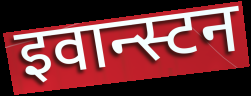
इवान्स्टन